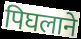
पिघलाने